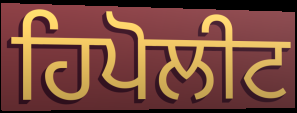
ਹਿਪੋਲੀਟ